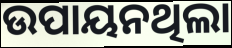
ଉପାୟନଥିଲା